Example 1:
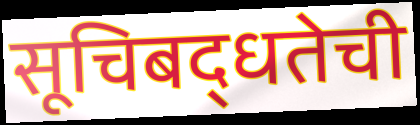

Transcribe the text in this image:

सूचिबद्धतेची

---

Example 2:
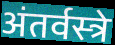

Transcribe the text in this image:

अंतर्वस्त्रे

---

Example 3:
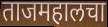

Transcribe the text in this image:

ताजमहालचा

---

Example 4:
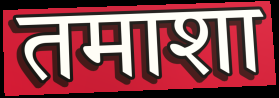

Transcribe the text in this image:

तमाशा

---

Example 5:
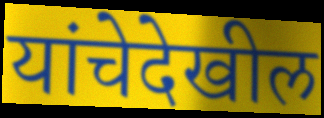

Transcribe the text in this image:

यांचेदेखील